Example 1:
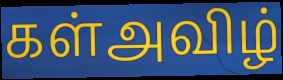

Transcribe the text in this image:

கள்அவிழ்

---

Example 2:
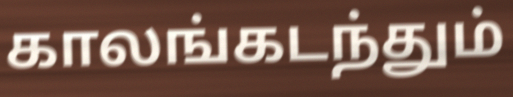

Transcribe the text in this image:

காலங்கடந்தும்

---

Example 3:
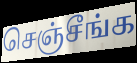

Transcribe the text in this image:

செஞ்சீங்க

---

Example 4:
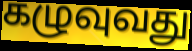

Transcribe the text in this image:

கழுவுவது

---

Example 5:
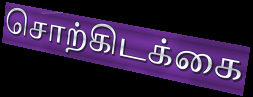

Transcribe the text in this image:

சொற்கிடக்கை